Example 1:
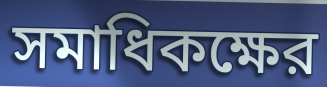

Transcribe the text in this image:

সমাধিকক্ষের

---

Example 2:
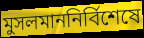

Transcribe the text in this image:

মুসলমাননির্বিশেষে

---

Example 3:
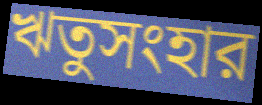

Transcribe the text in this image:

ঋতুসংহার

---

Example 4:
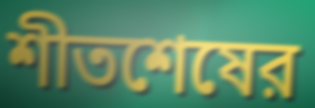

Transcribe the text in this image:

শীতশেষের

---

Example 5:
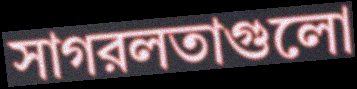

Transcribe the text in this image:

সাগরলতাগুলো